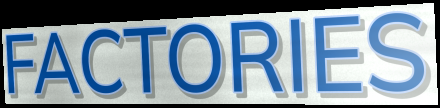
FACTORIES